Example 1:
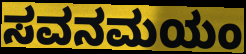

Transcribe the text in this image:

ಸವನಮಯಂ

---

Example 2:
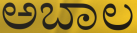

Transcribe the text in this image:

ಅಬಾಲ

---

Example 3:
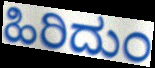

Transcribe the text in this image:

ಹಿರಿದುಂ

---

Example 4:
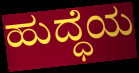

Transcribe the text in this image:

ಹುದ್ಧೆಯ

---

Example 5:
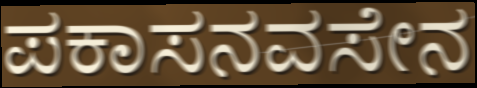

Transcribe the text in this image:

ಪಕಾಸನವಸೇನ